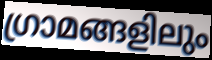
ഗ്രാമങ്ങളിലും